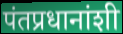
पंतप्रधानांशी